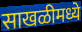
साखळीमध्ये